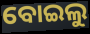
ବୋଇଲୁ